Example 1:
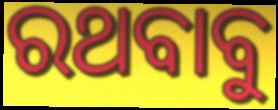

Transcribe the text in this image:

ରଥବାବୁ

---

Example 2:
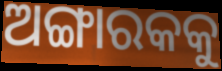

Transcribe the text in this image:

ଅଙ୍ଗାରକକୁ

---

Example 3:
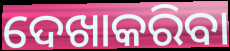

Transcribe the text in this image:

ଦେଖାକରିବା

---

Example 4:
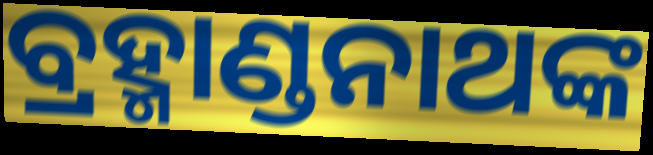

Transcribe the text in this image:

ବ୍ରହ୍ମାଣ୍ଡନାଥଙ୍କ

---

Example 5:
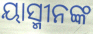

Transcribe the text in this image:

ୟାସ୍ମୀନଙ୍କ